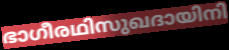
ഭാഗീരഥിസുഖദായിനി